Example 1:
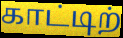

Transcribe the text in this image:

காட்டிற்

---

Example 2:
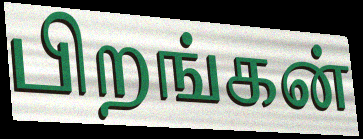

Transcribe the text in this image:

பிறங்கன்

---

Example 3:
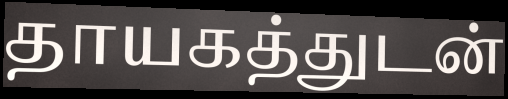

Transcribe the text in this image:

தாயகத்துடன்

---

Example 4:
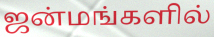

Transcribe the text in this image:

ஜன்மங்களில்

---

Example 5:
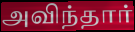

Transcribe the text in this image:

அவிந்தார்